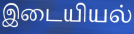
இடையியல்